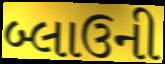
બ્લાઉની